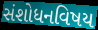
સંશોધનવિષય